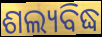
ଶଲ୍ୟବିଦ୍ଧ